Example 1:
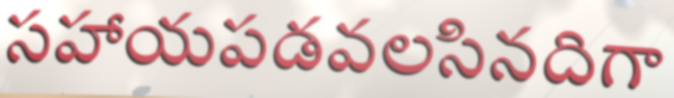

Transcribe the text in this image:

సహాయపడవలసినదిగా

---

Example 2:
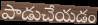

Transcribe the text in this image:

పాడుచేయడం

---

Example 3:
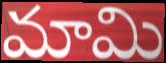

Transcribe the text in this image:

మామి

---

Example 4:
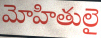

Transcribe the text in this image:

మోహితులై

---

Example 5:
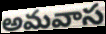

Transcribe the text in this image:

అమవాస